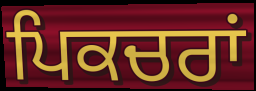
ਪਿਕਚਰਾਂ